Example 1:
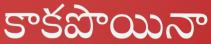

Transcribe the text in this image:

కాకపొయినా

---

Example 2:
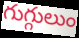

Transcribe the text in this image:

గుగ్గులుం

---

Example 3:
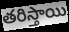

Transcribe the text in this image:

తరిస్తాయి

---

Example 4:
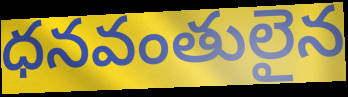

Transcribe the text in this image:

ధనవంతులైన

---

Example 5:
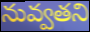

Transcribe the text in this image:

నువ్వతని